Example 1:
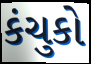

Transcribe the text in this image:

કંચુકો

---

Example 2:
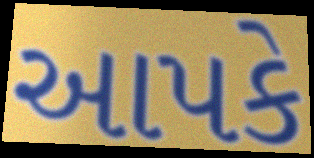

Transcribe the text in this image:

આપકે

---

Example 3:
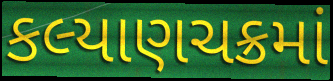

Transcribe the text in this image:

કલ્યાણચક્રમાં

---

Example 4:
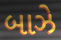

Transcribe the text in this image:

બાઝે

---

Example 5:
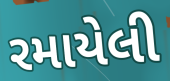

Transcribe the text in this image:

રમાયેલી